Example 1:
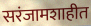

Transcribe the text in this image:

सरंजामशाहीत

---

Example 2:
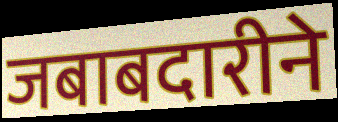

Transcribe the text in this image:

जबाबदारीने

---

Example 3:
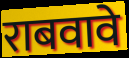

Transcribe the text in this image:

राबवावे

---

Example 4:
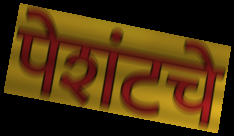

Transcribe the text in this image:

पेशंटचे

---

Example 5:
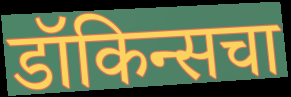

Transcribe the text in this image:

डॉकिन्सचा